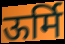
ऊर्मि